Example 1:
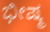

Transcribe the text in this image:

ಭೀಷ್ಮ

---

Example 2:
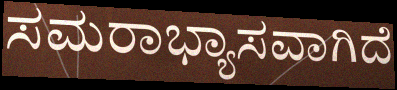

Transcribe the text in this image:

ಸಮರಾಭ್ಯಾಸವಾಗಿದೆ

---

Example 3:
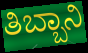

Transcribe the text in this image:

ತಿಬ್ಬಾನಿ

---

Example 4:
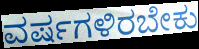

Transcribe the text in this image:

ವರ್ಷಗಳಿರಬೇಕು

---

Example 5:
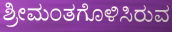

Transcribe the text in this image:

ಶ್ರೀಮಂತಗೊಳಿಸಿರುವ